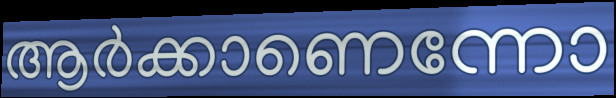
ആർക്കാണെന്നോ